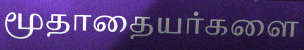
மூதாதையர்களை